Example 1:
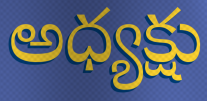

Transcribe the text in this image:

అధ్యక్షు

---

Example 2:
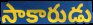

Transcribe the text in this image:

సాకారుడు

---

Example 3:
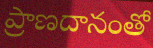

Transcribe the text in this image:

ప్రాణదానంతో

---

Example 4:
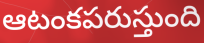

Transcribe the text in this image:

ఆటంకపరుస్తుంది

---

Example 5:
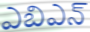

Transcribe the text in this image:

ఎబిఎన్